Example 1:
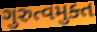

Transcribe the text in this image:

ગુરુત્વમુક્ત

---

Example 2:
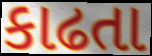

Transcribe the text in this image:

કાઢતા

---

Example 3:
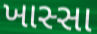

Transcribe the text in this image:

ખાસ્સા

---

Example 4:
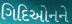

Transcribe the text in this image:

ગિદિઓનને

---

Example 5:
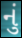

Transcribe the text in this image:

નું